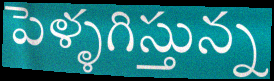
పెళ్ళగిస్తున్న